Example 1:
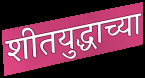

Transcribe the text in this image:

शीतयुद्धाच्या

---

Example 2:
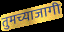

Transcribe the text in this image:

तुमच्याजागी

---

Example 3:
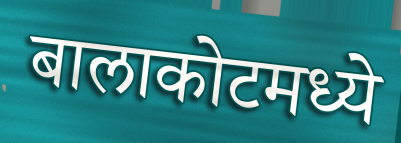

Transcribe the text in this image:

बालाकोटमध्ये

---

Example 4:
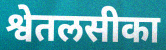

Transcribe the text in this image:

श्वेतलसीका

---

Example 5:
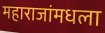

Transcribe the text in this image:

महाराजांमधला